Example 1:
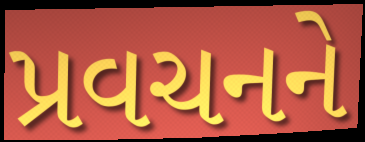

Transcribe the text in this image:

પ્રવચનને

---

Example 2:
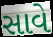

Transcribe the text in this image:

સાવે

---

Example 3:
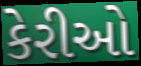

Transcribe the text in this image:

કેરીઓ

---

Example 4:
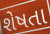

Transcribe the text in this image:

શેષતા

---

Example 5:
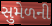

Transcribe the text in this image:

સુમેળની